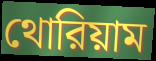
থোরিয়াম